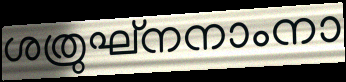
ശത്രുഘ്നനാംനാ